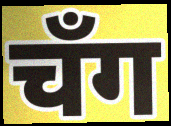
चँग